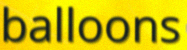
balloons